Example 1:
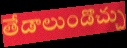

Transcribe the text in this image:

తేడాలుండొచ్చు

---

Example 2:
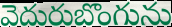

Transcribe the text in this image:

వెదురుబొంగును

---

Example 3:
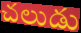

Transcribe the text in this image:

చలుడు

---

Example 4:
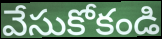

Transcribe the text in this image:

వేసుకోకండి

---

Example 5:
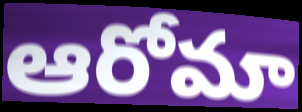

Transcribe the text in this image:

ఆరోమా